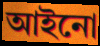
আইনো